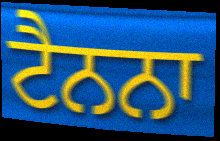
ਟੈਨਨਾ